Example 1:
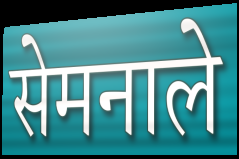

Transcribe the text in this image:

सेमनाले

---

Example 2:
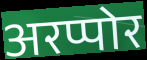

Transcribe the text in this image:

अरप्पोर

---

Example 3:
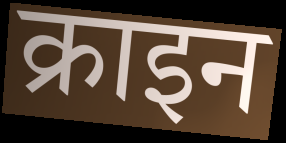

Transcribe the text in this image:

क्राइन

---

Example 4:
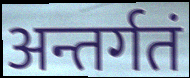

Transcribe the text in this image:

अन्तर्गतं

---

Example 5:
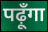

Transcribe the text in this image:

पढ़ूँगा